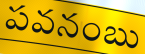
పవనంబు